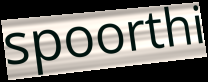
spoorthi